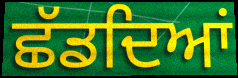
ਛੱਡਦਿਆਂ